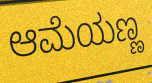
ಆಮೆಯಣ್ಣ